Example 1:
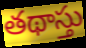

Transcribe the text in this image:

తథాస్తు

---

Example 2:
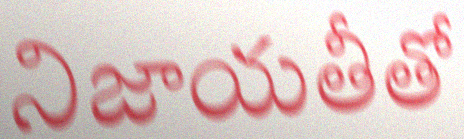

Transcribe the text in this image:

నిజాయతీతో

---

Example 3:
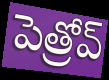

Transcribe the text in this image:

పెత్రోవ్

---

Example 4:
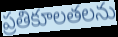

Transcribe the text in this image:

ప్రతికూలతలను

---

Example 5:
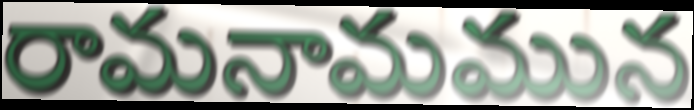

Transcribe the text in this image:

రామనామమున